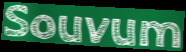
Souvum